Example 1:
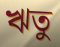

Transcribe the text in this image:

ঋতু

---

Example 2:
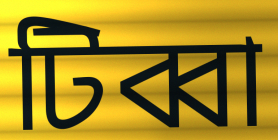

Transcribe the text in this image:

টিব্বা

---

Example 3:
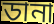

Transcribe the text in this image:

ডানা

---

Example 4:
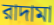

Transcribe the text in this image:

রাদামা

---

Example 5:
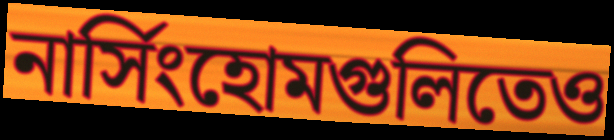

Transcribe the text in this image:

নার্সিংহোমগুলিতেও